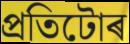
প্ৰতিটোৰ